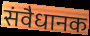
संवैधानक